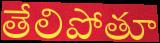
తేలిపోతూ